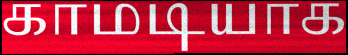
காமடியாக